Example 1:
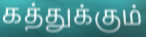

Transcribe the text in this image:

கத்துக்கும்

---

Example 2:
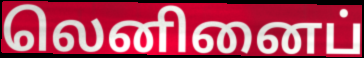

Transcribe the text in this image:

லெனினைப்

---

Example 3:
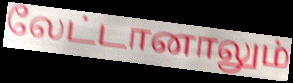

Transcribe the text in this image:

லேட்டானாலும்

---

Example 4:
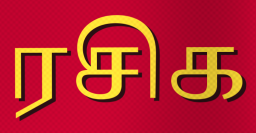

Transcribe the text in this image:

ரசிக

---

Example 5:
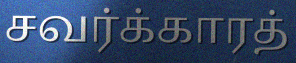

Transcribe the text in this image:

சவர்க்காரத்